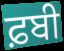
ਫ਼ਬੀ